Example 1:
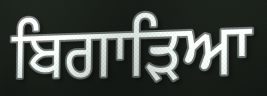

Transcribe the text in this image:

ਬਿਗਾੜਿਆ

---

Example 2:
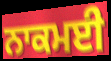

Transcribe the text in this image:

ਨਾਕਮਈ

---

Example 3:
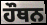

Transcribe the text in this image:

ਹੌਥਨ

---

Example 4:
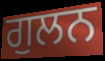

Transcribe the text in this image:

ਗੁਲਨ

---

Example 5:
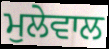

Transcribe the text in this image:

ਮੁਲੇਵਾਲ